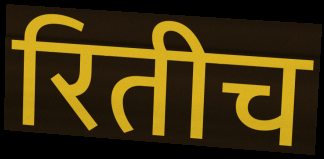
रितीच